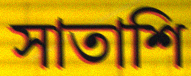
সাতাশি